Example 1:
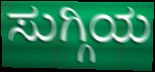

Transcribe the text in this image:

ಸುಗ್ಗಿಯ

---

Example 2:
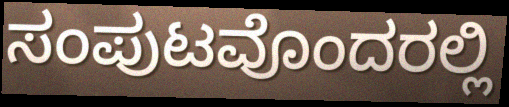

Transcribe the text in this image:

ಸಂಪುಟವೊಂದರಲ್ಲಿ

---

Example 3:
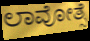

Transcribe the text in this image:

ಲಾವೋತ್ಸೆ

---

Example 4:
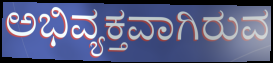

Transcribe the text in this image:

ಅಭಿವ್ಯಕ್ತವಾಗಿರುವ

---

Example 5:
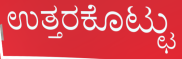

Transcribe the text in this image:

ಉತ್ತರಕೊಟ್ಟು